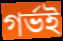
গর্ভই